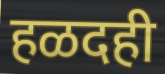
हळदही